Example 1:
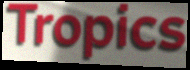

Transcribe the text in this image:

Tropics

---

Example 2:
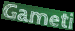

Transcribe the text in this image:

Gameti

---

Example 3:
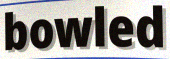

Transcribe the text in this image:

bowled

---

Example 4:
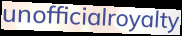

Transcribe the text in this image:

unofficialroyalty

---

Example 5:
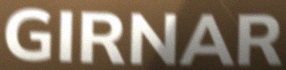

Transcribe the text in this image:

GIRNAR